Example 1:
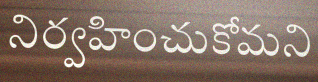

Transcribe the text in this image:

నిర్వహించుకోమని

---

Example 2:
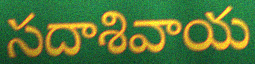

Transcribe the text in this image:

సదాశివాయ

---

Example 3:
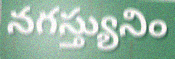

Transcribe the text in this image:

నగస్త్యునిం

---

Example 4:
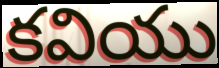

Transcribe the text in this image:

కవియు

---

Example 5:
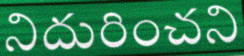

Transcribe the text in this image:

నిదురించని